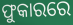
ଫୁକାରରେ